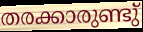
തരക്കാരുണ്ടു്